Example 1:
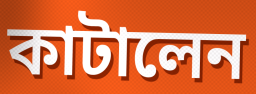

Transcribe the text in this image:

কাটালেন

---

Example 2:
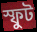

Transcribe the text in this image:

স্ফুট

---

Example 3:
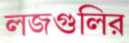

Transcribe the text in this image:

লজগুলির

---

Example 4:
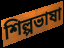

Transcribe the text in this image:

শিল্পভাষা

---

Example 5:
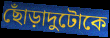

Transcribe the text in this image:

ছোঁড়াদুটোকে